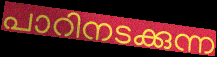
പാറിനടക്കുന്ന